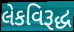
લેકવિરૂદ્ધ